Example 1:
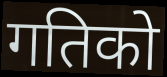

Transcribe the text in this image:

गतिको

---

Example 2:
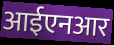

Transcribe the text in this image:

आईएनआर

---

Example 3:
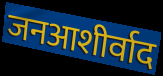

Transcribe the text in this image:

जनआशीर्वाद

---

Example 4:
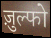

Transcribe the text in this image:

ज़ुल्फो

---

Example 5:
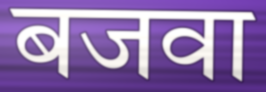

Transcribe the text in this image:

बजवा